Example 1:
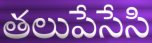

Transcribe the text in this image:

తలుపేసేసి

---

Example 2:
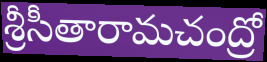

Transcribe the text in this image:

శ్రీసీతారామచంద్రో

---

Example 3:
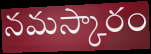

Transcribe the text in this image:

నమస్కారం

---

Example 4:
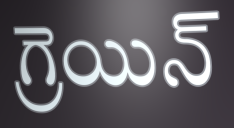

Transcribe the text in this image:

గ్రెయిన్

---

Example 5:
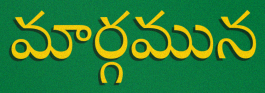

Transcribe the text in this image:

మార్గమున